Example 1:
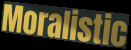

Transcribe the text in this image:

Moralistic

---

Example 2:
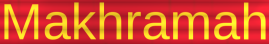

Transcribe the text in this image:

Makhramah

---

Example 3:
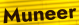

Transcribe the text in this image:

Muneer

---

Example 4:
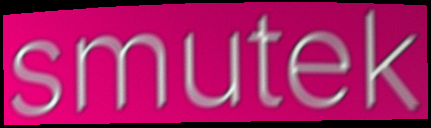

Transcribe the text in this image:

smutek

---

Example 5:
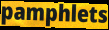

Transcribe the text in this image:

pamphlets